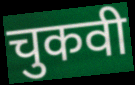
चुकवी